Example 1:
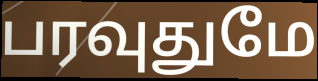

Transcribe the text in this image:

பரவுதுமே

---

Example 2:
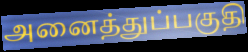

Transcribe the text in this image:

அனைத்துப்பகுதி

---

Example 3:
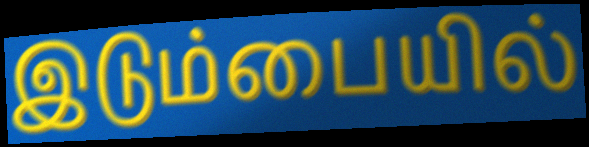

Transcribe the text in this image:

இடும்பையில்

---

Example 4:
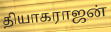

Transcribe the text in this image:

தியாகராஜன்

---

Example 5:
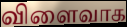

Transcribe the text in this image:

விளைவாக